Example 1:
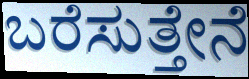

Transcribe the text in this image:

ಬರೆಸುತ್ತೇನೆ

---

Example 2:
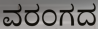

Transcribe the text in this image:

ವರಂಗದ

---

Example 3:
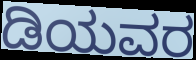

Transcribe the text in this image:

ಡಿಯವರ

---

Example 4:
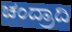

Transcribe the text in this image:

ಚಂದ್ರಾದಿ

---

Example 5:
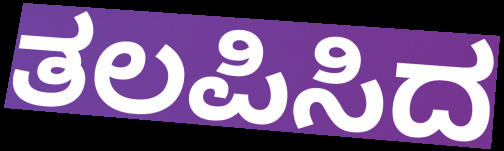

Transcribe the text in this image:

ತಲಪಿಸಿದ